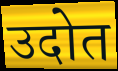
उदोत